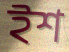
ইশ